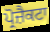
ਪ੍ਰੋਜ਼ੈਕਟਾ